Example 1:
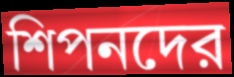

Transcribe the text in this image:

শিপনদের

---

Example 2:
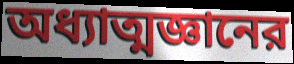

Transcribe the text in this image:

অধ্যাত্মজ্ঞানের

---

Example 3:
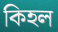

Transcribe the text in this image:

কিহল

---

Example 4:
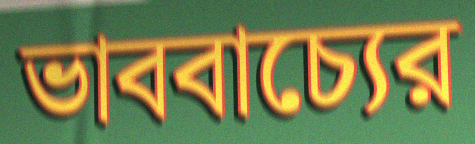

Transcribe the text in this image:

ভাববাচ্যের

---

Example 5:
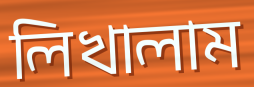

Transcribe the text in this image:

লিখালাম